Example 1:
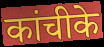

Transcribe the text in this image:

कांचीके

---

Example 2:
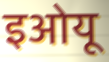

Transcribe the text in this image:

इओयू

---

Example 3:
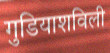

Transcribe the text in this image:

गुडियाशविली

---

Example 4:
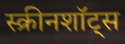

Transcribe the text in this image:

स्क्रीनशॉट्स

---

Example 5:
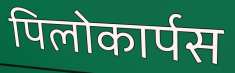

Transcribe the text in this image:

पिलोकार्पस